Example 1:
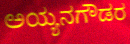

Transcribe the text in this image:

ಅಯ್ಯನಗೌಡರ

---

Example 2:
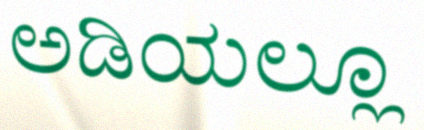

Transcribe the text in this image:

ಅಡಿಯಲ್ಲೂ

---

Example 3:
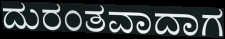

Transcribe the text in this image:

ದುರಂತವಾದಾಗ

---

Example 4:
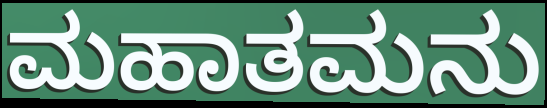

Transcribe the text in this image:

ಮಹಾತಮನು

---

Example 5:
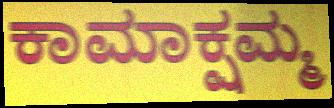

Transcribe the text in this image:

ಕಾಮಾಕ್ಷಮ್ಮ